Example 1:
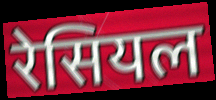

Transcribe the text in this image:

रेसियल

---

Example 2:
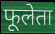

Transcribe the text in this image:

फूलेता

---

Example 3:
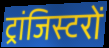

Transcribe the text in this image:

ट्रांजिस्टरों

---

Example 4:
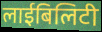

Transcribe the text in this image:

लाईबिलिटी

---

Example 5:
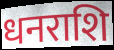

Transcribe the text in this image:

धनराशि